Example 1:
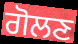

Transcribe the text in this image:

ਗੋਲਣ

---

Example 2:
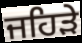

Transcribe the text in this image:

ਜਹਿੜੇ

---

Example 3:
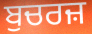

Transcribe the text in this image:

ਬੁਚਰਜ਼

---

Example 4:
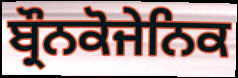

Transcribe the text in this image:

ਬ੍ਰੌਨਕੋਜੇਨਿਕ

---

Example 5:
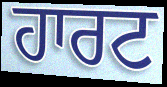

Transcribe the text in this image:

ਹਾਰਟ